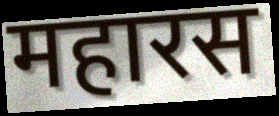
महारस